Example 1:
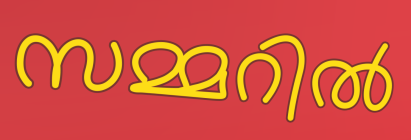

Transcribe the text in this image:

സമ്മറിൽ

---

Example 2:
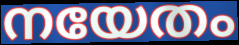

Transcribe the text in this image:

നയേതം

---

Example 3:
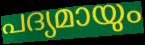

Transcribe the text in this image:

പദ്യമായും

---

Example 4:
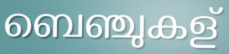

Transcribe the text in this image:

ബെഞ്ചുകള്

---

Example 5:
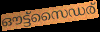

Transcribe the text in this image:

ഔട്ട്സൈഡര്